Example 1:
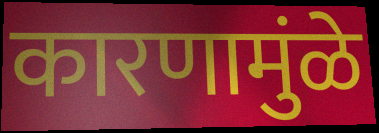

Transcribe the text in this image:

कारणामुंळे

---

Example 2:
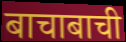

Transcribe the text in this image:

बाचाबाची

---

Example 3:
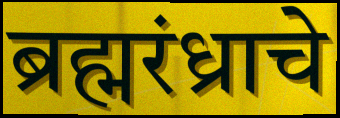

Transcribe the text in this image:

ब्रह्मरंध्राचे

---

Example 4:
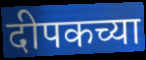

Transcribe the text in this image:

दीपकच्या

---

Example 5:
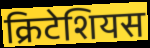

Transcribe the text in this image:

क्रिटेशियस